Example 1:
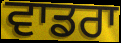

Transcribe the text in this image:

ਵਾਡਰਾ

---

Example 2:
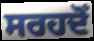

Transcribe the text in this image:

ਸਰਹਦੋਂ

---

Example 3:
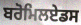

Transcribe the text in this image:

ਬਰੋਮਿਲਏਡਸ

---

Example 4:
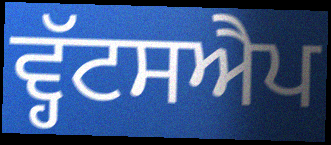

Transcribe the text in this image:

ਵ੍ਹੱਟਸਐਪ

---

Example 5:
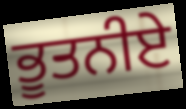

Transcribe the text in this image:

ਭੂਤਨੀਏ